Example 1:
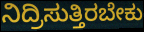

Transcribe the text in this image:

ನಿದ್ರಿಸುತ್ತಿರಬೇಕು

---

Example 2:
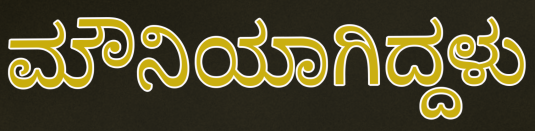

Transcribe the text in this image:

ಮೌನಿಯಾಗಿದ್ದಳು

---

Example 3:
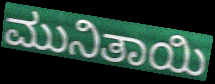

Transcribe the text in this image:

ಮುನಿತಾಯಿ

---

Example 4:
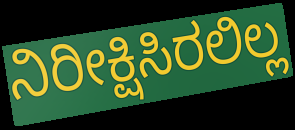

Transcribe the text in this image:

ನಿರೀಕ್ಷಿಸಿರಲಿಲ್ಲ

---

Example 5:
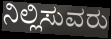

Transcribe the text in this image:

ನಿಲ್ಲಿಸುವರು